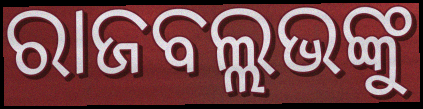
ରାଜବଲ୍ଲଭଙ୍କୁ